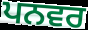
ਪਨਵਰ